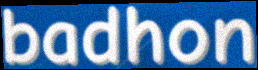
badhon